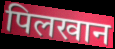
पिलखान